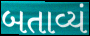
બતાવ્યં